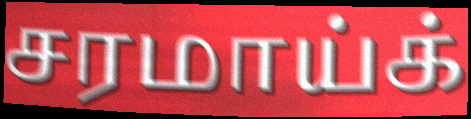
சரமாய்க்